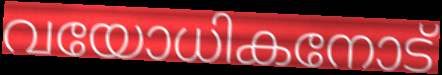
വയോധികനോട്